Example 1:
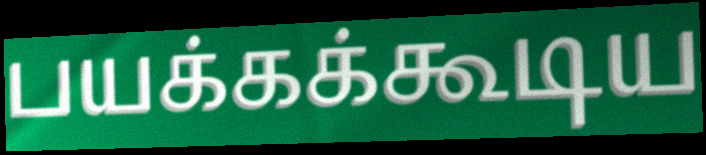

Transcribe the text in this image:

பயக்கக்கூடிய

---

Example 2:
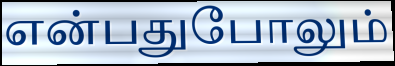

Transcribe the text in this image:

என்பதுபோலும்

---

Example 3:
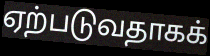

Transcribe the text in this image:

ஏற்படுவதாகக்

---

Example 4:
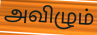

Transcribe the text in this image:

அவிழும்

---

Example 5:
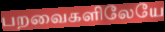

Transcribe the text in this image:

பறவைகளிலேயே